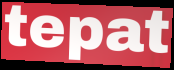
tepat